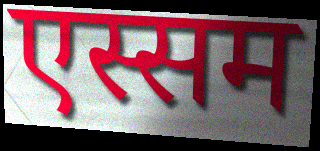
एस्सम